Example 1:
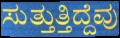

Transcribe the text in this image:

ಸುತ್ತುತ್ತಿದ್ದೆವು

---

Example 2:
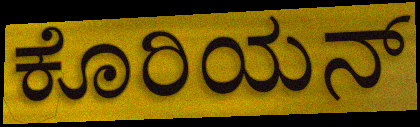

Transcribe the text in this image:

ಕೊರಿಯನ್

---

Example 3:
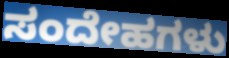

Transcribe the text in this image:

ಸಂದೇಹಗಳು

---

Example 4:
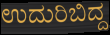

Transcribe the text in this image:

ಉದುರಿಬಿದ್ದ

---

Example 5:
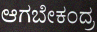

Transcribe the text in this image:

ಆಗಬೇಕಂದ್ರ